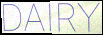
DAIRY